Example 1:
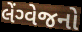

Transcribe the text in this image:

લેંગ્વેજનો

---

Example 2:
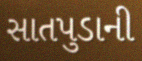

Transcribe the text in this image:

સાતપુડાની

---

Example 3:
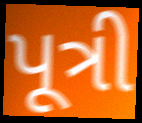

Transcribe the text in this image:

પૂત્રી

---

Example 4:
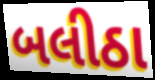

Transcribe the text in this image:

બલીઠા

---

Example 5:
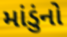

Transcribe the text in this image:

માંડુંનો